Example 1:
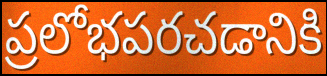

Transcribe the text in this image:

ప్రలోభపరచడానికి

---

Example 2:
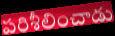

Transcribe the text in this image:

పరిశీలించాడు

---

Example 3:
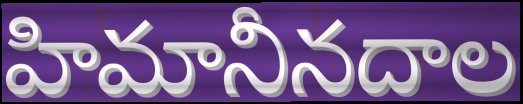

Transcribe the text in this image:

హిమానీనదాల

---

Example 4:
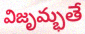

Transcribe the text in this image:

విజృమ్భతే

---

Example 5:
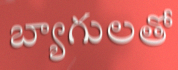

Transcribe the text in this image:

బ్యాగులతో